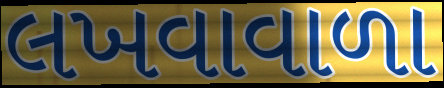
લખવાવાળા